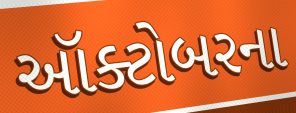
ઑક્ટોબરના